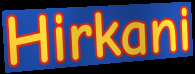
Hirkani